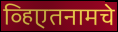
व्हिएतनामचे